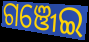
ଗଞ୍ଜେଇ